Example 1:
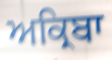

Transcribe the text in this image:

ਅਕ੍ਰਿਬਾ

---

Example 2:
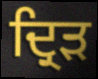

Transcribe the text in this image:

ਦ੍ਰਿਡ਼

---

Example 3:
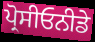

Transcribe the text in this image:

ਪ੍ਰੋਸੀਓਨੀਡੇ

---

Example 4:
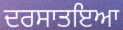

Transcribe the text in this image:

ਦਰਸਾਤਇਆ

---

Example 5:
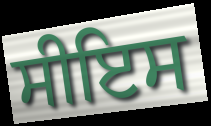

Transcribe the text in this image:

ਸੀਇਸ